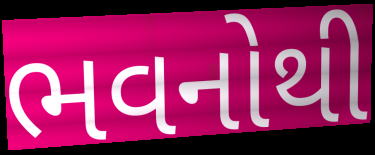
ભવનોથી